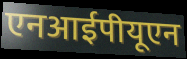
एनआईपीयूएन